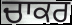
ਚਾਕਰ